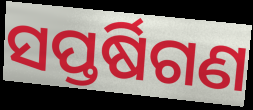
ସପ୍ତର୍ଷିଗଣ